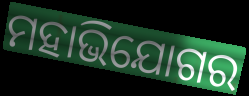
ମହାଭିଯୋଗର